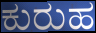
ಕುರುಹ